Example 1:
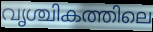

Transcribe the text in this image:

വൃശ്ചികത്തിലെ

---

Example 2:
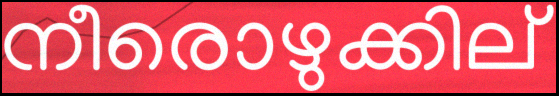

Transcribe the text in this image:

നീരൊഴുക്കില്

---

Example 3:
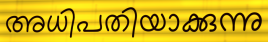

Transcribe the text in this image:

അധിപതിയാക്കുന്നു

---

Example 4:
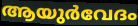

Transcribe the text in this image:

ആയുർവേദം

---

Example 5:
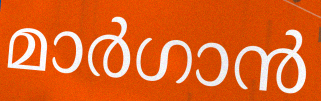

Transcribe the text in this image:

മാർഗാൻ